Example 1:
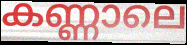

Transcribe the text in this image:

കണ്ണാലെ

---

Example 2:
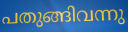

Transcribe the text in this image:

പതുങ്ങിവന്നു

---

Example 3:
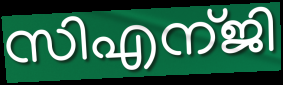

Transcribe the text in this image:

സിഎന്ജി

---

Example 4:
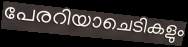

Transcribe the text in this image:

പേരറിയാചെടികളും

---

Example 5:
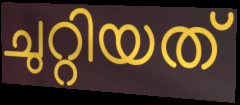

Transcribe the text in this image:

ചുറ്റിയത്